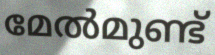
മേൽമുണ്ട്